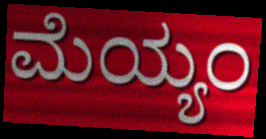
ಮೆಯ್ಯಂ